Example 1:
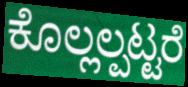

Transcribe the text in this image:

ಕೊಲ್ಲಲ್ಪಟ್ಟರೆ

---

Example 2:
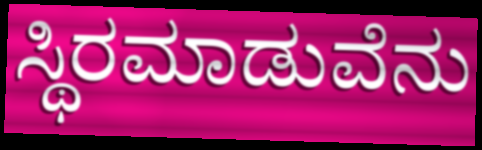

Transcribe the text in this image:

ಸ್ಥಿರಮಾಡುವೆನು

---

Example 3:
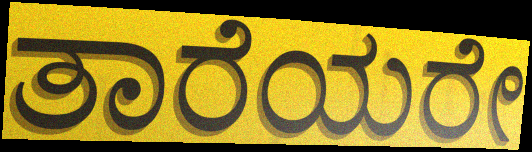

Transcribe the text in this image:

ತಾರೆಯರೇ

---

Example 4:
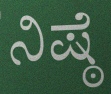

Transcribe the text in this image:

ನಿಷ್ಠೆ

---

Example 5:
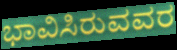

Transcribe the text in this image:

ಭಾವಿಸಿರುವವರ